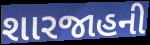
શારજાહની